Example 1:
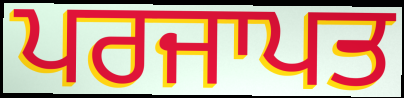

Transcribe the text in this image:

ਪਰਜਾਪਤ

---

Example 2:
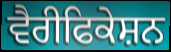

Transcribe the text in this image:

ਵੈਰੀਫਿਕੇਸ਼ਨ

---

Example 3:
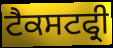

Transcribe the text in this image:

ਟੈਕਸਟਫ੍ਰੀ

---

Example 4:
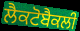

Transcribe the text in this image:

ਲੈਕਟੋਬੈਕਲੀ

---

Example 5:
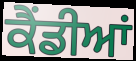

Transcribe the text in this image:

ਕੈਂਡੀਆਂ